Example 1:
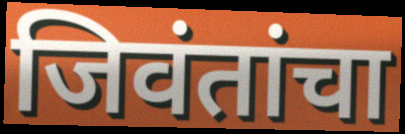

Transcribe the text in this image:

जिवंतांचा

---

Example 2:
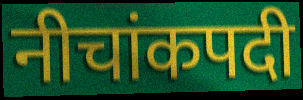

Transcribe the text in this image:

नीचांकपदी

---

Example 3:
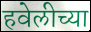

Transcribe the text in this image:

हवेलीच्या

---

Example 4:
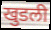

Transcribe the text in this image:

खुडली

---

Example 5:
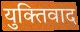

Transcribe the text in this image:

युक्‍तिवाद